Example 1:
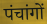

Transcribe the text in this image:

पंचांगों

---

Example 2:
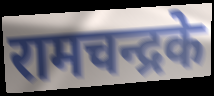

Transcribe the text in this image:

रामचन्द्रके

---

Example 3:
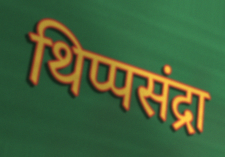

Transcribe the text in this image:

थिप्पसंद्रा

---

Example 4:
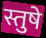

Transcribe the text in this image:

स्तुषे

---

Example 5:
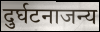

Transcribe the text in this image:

दुर्घटनाजन्य